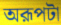
অরূপটা